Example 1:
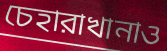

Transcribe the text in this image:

চেহারাখানাও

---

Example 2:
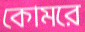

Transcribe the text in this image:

কোমরে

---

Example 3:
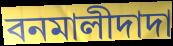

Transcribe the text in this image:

বনমালীদাদা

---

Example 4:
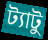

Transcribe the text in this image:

ট্যাটু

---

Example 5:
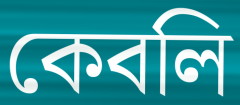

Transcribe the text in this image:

কেবলি